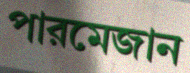
পারমেজান